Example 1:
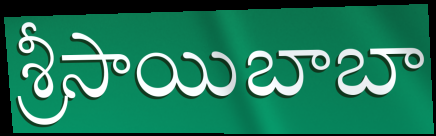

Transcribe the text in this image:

శ్రీసాయిబాబా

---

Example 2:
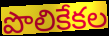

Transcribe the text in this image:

పొలికేకల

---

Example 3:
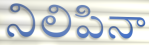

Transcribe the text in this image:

నిలిపినా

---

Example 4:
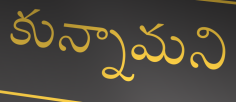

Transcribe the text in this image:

కున్నామని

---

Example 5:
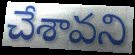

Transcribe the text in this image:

చేశావని